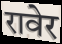
रावेर